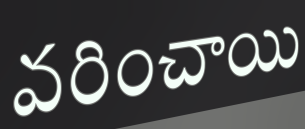
వరించాయి